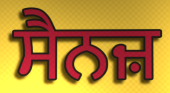
ਸੈਨਜ਼